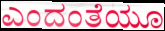
ಎಂದಂತೆಯೂ